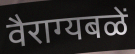
वैराग्यबळें